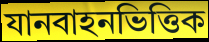
যানবাহনভিত্তিক